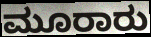
ಮೂರಾರು